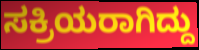
ಸಕ್ರಿಯರಾಗಿದ್ದು